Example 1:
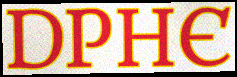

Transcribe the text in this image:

DPHE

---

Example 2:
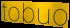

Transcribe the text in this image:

tobuo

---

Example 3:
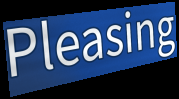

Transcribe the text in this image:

Pleasing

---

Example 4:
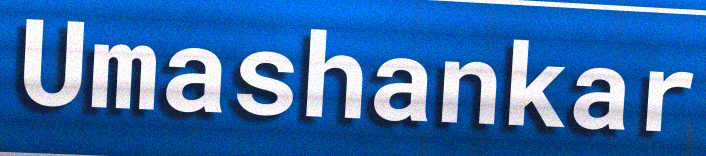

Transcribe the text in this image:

Umashankar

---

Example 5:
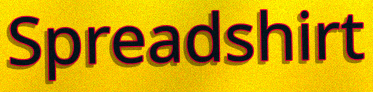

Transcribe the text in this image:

Spreadshirt